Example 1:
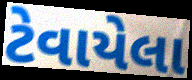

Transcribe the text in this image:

ટેવાયેલા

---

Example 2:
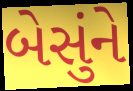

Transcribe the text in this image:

બેસુંને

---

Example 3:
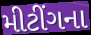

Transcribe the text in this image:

મીટીંગના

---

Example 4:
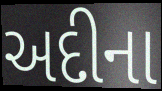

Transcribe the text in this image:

અદીના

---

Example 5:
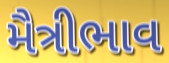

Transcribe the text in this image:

મૈત્રીભાવ